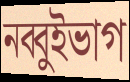
নব্বুইভাগ